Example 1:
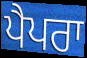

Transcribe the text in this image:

ਪੈਪਰਾ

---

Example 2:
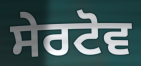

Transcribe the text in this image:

ਸੇਰਟੋਵ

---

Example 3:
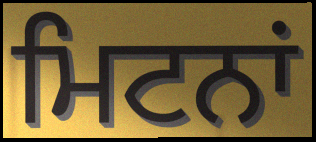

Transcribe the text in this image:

ਮਿਟਨਾਂ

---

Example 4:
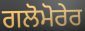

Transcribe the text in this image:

ਗਲੋਮੋਰੇਰ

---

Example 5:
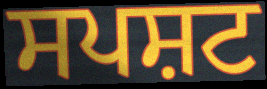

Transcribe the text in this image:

ਸਪਸ਼ਟ